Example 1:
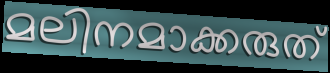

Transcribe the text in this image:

മലിനമാക്കരുത്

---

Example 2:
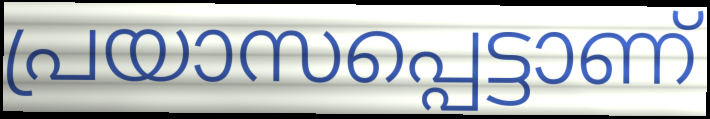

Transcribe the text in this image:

പ്രയാസപ്പെട്ടാണ്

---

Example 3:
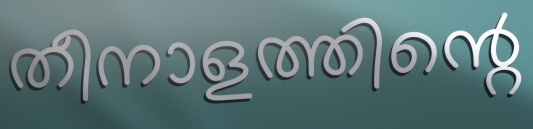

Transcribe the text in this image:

തീനാളത്തിന്റെ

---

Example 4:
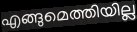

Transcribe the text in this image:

എങ്ങുമെത്തിയില്ല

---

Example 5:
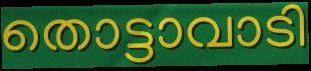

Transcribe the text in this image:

തൊട്ടാവാടി